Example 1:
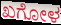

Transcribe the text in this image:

ಖಗೋಳ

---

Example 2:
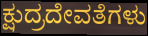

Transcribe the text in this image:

ಕ್ಷುದ್ರದೇವತೆಗಳು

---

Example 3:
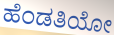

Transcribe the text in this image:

ಹೆಂಡತಿಯೋ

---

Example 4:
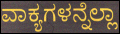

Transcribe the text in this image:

ವಾಕ್ಯಗಳನ್ನೆಲ್ಲಾ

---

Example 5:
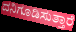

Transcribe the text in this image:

ದನಿಗೂಡಿಸುತ್ತಾರೆ